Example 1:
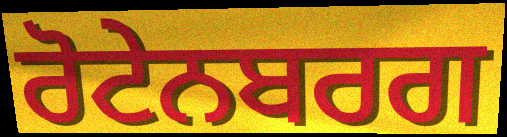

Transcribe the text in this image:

ਰੋਟੇਨਬਰਗ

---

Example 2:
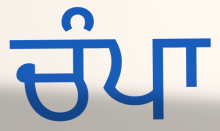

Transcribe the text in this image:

ਚੰਪਾ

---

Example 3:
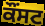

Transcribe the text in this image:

ਕੌਂਸਟ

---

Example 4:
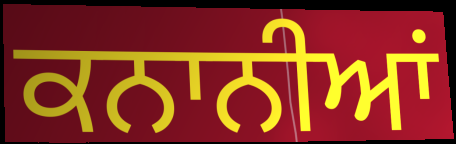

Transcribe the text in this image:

ਕਨਾਨੀਆਂ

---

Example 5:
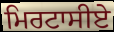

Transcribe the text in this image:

ਮਿਰਟਾਸੀਏ